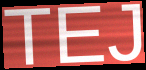
TEJ